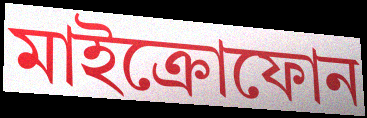
মাইক্রোফোন